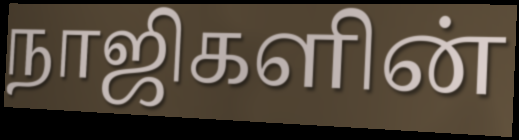
நாஜிகளின்